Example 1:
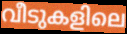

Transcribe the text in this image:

വീടുകളിലെ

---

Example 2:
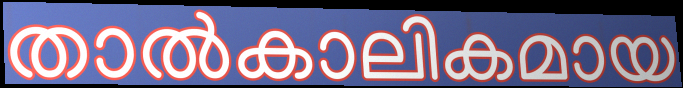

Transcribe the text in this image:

താൽകാലികമായ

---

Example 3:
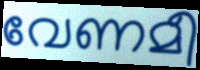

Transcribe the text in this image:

വേണമീ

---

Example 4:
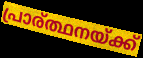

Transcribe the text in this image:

പ്രാര്ത്ഥനയ്ക്ക്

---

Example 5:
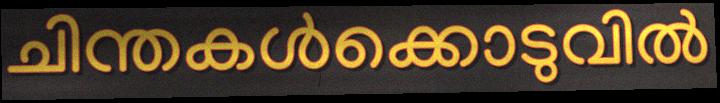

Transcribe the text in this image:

ചിന്തകൾക്കൊടുവിൽ